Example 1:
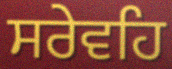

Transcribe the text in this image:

ਸਰੇਵਹਿ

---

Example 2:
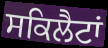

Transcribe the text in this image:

ਸਕਿਲੈਟਾਂ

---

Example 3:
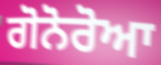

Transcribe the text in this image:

ਗੋਨੋਰੋਆ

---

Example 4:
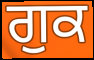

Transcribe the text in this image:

ਗੁਕ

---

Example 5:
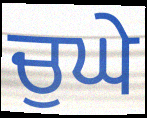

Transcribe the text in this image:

ਚੁਘੇ